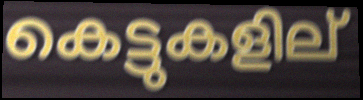
കെട്ടുകളില്